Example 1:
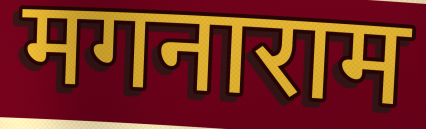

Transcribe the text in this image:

मगनाराम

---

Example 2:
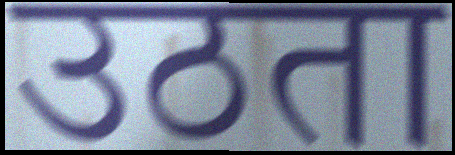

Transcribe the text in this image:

उठता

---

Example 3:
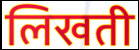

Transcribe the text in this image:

लिखती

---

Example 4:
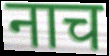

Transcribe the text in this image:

नाच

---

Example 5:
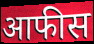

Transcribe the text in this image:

आफीस